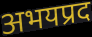
अभयप्रद